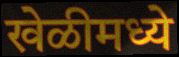
खेळीमध्ये